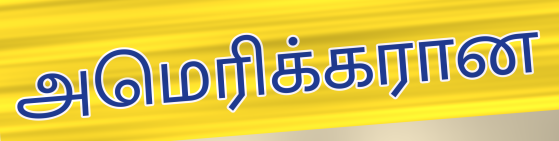
அமெரிக்கரான